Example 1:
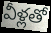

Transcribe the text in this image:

వీళ్లతో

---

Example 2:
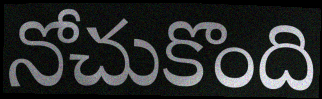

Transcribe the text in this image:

నోచుకొంది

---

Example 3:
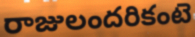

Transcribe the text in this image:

రాజులందరికంటె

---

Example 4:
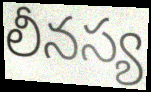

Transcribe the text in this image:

లీనస్య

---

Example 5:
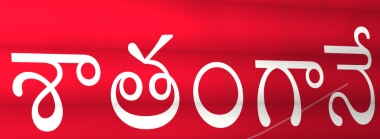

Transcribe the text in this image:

శాతంగానే